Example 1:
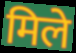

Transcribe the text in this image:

मिले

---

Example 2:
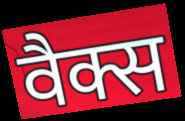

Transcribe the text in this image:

वैक्स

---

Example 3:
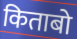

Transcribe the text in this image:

किताबो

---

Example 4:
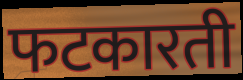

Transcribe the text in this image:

फटकारती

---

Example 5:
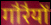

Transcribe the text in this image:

गौरैयों